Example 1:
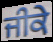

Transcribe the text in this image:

ਜੀਕੇ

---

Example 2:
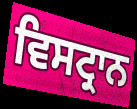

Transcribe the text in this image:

ਵਿਸਟ੍ਰਾਨ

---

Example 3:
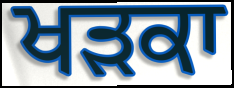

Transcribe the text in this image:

ਖੜਕਾ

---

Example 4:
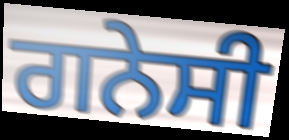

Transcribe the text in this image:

ਗਨੇਸੀ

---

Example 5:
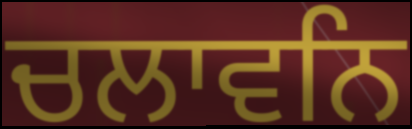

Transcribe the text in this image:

ਚਲਾਵਨਿ